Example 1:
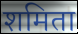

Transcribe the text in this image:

शमिता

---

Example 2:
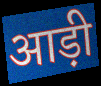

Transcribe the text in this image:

आड़ी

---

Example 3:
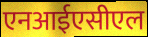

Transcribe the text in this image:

एनआईएसीएल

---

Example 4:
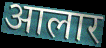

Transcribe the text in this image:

आलार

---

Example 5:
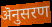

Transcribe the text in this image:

ऄनुसरण